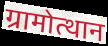
ग्रामोत्थान